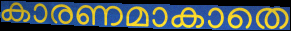
കാരണമാകാതെ